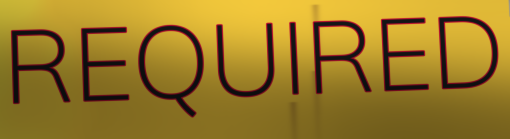
REQUIRED